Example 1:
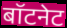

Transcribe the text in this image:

बॉटनेट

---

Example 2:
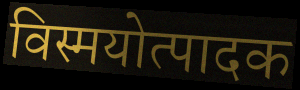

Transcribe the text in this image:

विस्मयोत्पादक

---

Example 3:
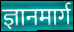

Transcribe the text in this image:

ज्ञानमार्ग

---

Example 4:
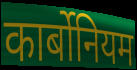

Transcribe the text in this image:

कार्बोनियम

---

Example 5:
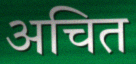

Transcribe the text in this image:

अचित